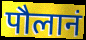
पौलानं